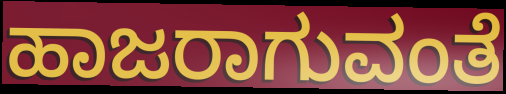
ಹಾಜರಾಗುವಂತೆ